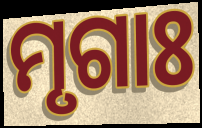
ମୃଗାଃ